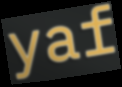
yaf